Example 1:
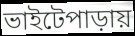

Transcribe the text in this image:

ভাইটেপাড়ায়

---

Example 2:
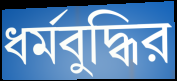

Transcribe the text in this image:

ধর্মবুদ্ধির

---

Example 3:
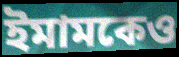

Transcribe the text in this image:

ইমামকেও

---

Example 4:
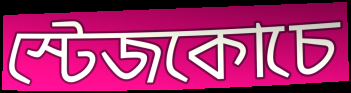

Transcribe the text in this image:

স্টেজকোচে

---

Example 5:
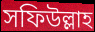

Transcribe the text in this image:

সফিউল্লাহ